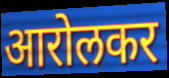
आरोलकर